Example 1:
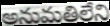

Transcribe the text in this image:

అనుమతిలేని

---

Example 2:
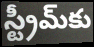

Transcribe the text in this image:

స్ట్రీమ్‌కు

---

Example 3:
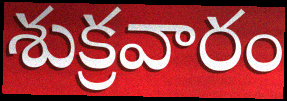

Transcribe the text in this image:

శుక్రవారం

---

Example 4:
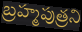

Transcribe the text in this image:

బ్రహ్మపుత్రని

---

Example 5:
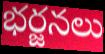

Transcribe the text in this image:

భర్జనలు